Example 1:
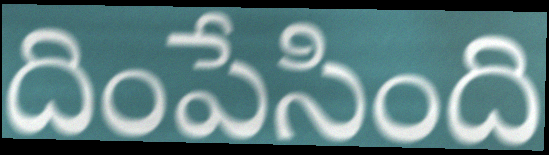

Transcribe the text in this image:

దింపేసింది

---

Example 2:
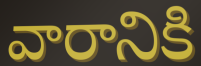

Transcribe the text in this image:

వారానికి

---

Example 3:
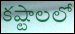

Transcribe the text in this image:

కష్టాలలో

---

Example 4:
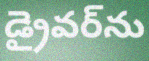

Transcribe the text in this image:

డ్రైవర్‌ను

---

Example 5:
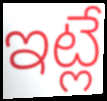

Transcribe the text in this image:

ఇట్లే